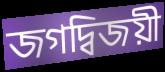
জগদ্বিজয়ী